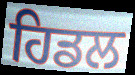
ਹਿਡਲ